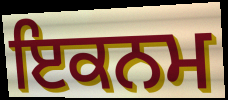
ਇਕਨਮ